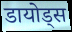
डायोड्स